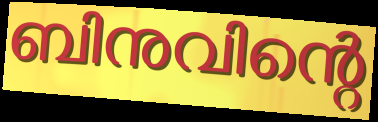
ബിനുവിന്റെ